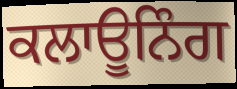
ਕਲਾਊਨਿੰਗ